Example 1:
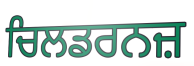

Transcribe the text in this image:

ਚਿਲਡਰਨਜ਼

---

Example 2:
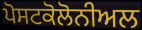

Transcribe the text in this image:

ਪੋਸਟਕੋਲੋਨੀਅਲ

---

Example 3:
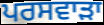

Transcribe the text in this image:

ਪਰਸਵਾੜਾ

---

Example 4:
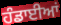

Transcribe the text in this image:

ਹੰਡਾਈਆਂ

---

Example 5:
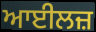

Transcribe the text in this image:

ਆਈਲਜ਼